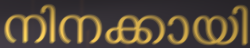
നിനക്കായി